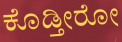
ಕೊಡ್ತೀರೋ